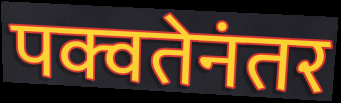
पक्वतेनंतर